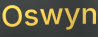
Oswyn